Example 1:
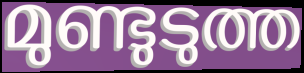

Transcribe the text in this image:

മുണ്ടുടുത്ത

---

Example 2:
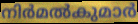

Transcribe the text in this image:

നിർമൽകുമാർ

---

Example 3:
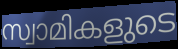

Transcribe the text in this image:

സ്വാമികളുടെ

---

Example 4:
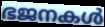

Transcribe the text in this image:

ഭജനകൾ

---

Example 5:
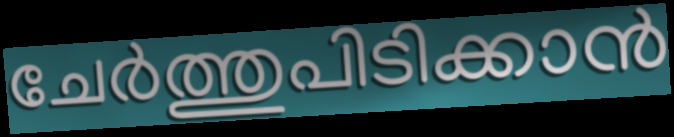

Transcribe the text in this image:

ചേർത്തുപിടിക്കാൻ